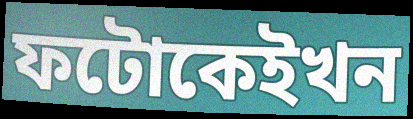
ফটোকেইখন